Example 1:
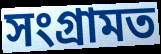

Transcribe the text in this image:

সংগ্ৰামত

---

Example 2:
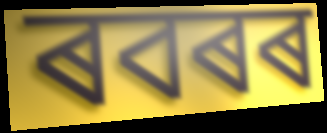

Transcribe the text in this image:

ৰবৰৰ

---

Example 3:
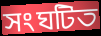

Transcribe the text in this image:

সংঘটিত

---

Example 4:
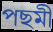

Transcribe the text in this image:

পছমী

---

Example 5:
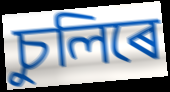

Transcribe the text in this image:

চুলিৰে